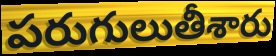
పరుగులుతీశారు